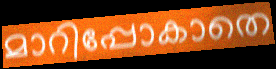
മാറിപ്പോകാതെ